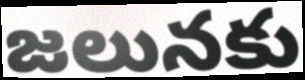
జలునకు